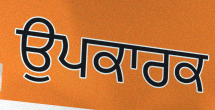
ਉਪਕਾਰਕ